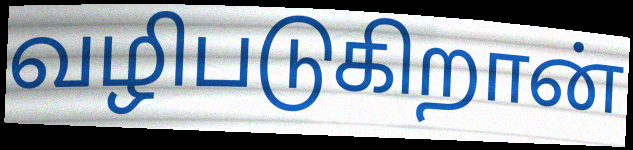
வழிபடுகிறான்